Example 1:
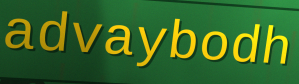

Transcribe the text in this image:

advaybodh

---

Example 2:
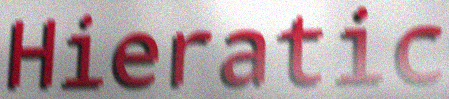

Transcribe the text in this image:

Hieratic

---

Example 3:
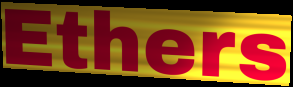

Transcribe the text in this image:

Ethers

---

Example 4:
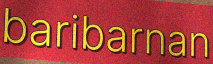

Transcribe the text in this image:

baribarnan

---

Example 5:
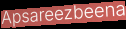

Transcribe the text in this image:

Apsareezbeena